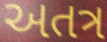
અતત્ર